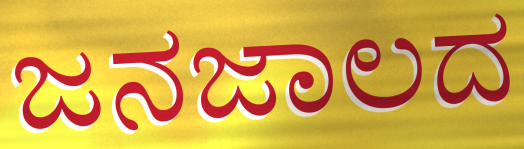
ಜನಜಾಲದ